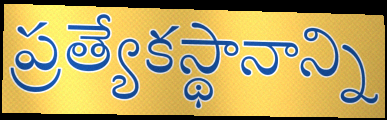
ప్రత్యేకస్థానాన్ని